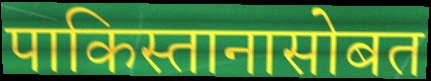
पाकिस्तानासोबत